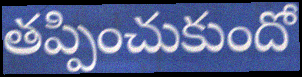
తప్పించుకుందో